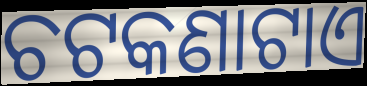
ଚଟକଣାଟାଏ